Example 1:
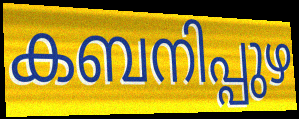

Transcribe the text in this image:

കബനിപ്പുഴ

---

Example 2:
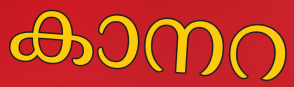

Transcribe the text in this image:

കാനറ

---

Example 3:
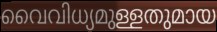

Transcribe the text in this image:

വൈവിധ്യമുള്ളതുമായ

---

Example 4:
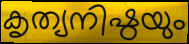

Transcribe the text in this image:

കൃത്യനിഷ്ഠയും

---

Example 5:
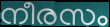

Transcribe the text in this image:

നീരസം